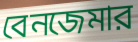
বেনজেমার